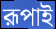
রূপাই